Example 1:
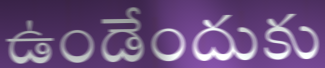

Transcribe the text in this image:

ఉండేందుకు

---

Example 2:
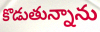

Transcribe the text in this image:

కొడుతున్నాను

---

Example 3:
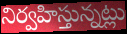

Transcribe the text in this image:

నిర్వహిస్తున్నట్లు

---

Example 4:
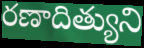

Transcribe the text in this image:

రణాదిత్యుని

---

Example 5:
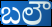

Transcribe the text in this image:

బలౌ